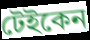
টেইকেন